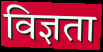
विज्ञता